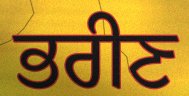
ਭਰੀਣ